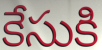
కేసుకి